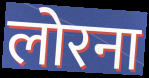
लोरना